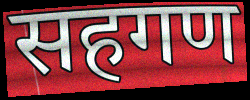
सहगण